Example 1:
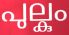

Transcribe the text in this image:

പുല്കും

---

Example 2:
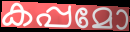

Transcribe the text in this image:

കപ്പമോ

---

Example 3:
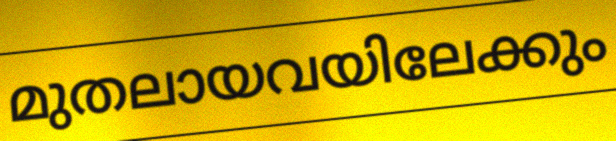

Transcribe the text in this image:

മുതലായവയിലേക്കും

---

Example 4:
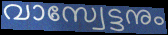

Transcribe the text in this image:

വാസ്വേട്ടനും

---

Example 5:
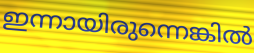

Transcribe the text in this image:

ഇന്നായിരുന്നെങ്കിൽ